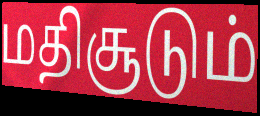
மதிசூடும்